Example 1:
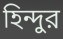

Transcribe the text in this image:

হিন্দুর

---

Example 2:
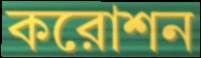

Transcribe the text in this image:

করোশন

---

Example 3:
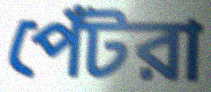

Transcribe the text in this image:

পেঁটরা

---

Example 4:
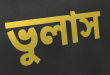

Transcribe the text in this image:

ভুলাস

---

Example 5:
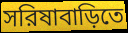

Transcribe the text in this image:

সরিষাবাড়িতে